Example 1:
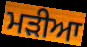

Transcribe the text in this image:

ਮੜੀਆ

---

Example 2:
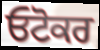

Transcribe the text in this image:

ਓਟੋਕਰ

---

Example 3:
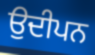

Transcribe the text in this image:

ਉਦੀਪਨ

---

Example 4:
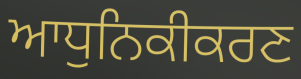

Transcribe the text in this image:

ਆਧੁਨਿਕੀਕਰਣ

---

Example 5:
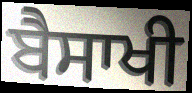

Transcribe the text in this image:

ਬੈਸਾਖੀ